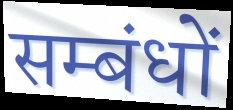
सम्बंधों